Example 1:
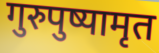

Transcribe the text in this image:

गुरुपुष्यामृत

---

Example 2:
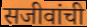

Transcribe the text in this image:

सजीवांची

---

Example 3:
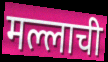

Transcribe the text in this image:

मल्लाची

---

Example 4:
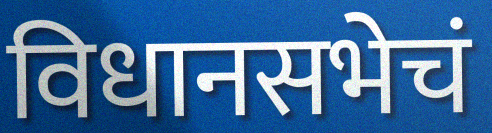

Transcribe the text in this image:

विधानसभेचं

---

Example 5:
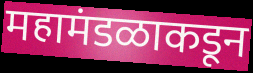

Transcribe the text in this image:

महामंडळाकडून